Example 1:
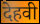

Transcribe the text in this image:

देहवी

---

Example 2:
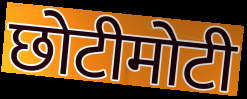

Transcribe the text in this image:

छोटीमोटी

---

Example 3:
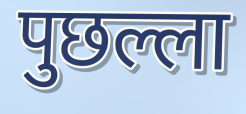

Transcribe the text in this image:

पुछल्ला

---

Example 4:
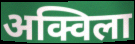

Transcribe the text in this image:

अक्विला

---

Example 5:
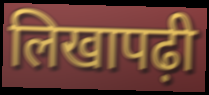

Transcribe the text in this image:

लिखापढ़ी